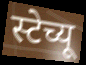
स्टेच्यू